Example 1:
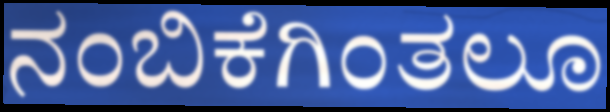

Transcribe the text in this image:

ನಂಬಿಕೆಗಿಂತಲೂ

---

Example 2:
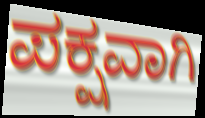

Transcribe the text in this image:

ಪಕ್ಷವಾಗಿ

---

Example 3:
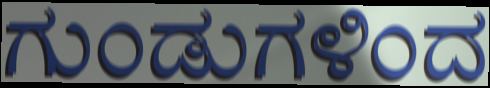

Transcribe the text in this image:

ಗುಂಡುಗಳಿಂದ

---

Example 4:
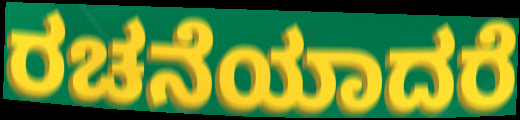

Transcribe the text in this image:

ರಚನೆಯಾದರೆ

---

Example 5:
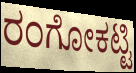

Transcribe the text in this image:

ರಂಗೋಕಟ್ಟಿ